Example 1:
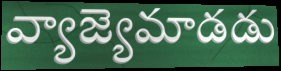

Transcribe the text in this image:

వ్యాజ్యెమాడడు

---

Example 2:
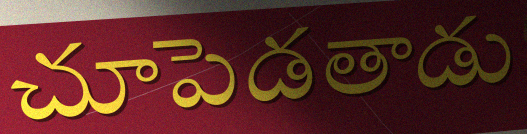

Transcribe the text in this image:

చూపెడతాడు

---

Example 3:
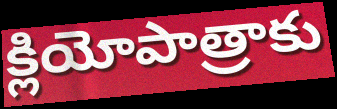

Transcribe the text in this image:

క్లియోపాత్రాకు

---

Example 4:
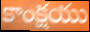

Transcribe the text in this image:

కాంక్షయు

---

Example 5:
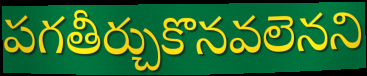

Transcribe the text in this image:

పగతీర్చుకొనవలెనని